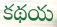
కథయ